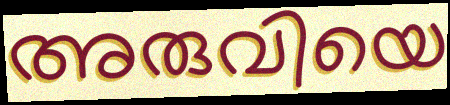
അരുവിയെ